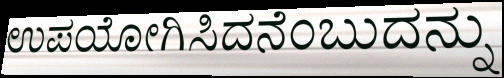
ಉಪಯೋಗಿಸಿದನೆಂಬುದನ್ನು